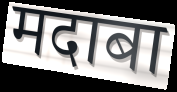
मदाबा